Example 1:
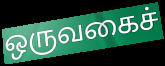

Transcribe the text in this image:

ஒருவகைச்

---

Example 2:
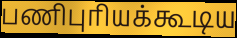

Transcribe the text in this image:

பணிபுரியக்கூடிய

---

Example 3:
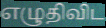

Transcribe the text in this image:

எழுதிவிட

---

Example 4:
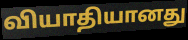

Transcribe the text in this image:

வியாதியானது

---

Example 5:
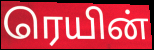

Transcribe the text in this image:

ரெயின்